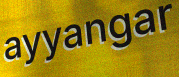
ayyangar